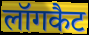
लॉगकैट